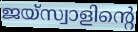
ജയ്സ്വാളിന്റെ